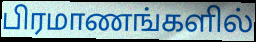
பிரமாணங்களில்